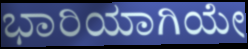
ಭಾರಿಯಾಗಿಯೇ